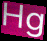
Hg